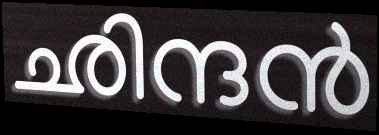
ഛിന്ദൻ